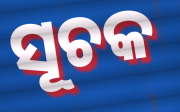
ସୂଚକ